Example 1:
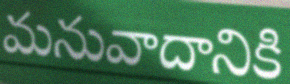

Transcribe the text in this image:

మనువాదానికి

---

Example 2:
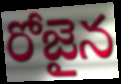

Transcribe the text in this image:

రోజైన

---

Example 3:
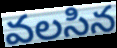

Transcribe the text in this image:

వలసిన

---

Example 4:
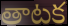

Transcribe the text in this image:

తాటక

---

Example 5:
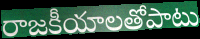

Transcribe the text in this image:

రాజకీయాలతోపాటు